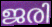
ജരി